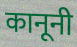
कानूनी